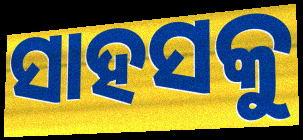
ସାହସକୁ